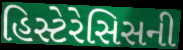
હિસ્ટેરેસિસની